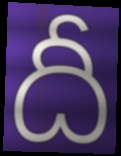
దీ